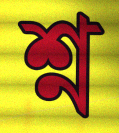
শ্ন